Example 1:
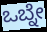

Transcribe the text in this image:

ಒಬ್ನೇ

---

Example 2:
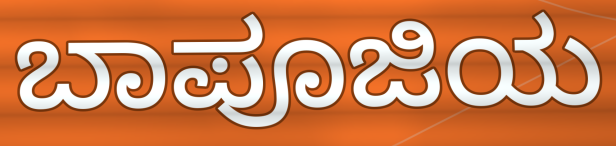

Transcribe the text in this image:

ಬಾಪೂಜಿಯ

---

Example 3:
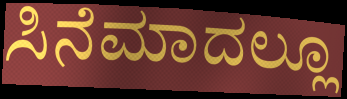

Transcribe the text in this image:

ಸಿನೆಮಾದಲ್ಲೂ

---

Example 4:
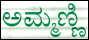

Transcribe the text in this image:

ಅಮ್ಮಣ್ಣಿ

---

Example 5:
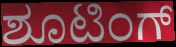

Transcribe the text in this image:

ಶೂಟಿಂಗ್